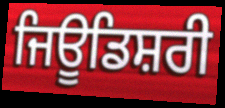
ਜਿਊਡਿਸ਼ਰੀ